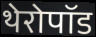
थेरोपॉड